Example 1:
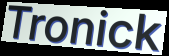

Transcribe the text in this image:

Tronick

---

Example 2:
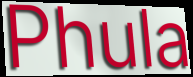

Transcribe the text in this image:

Phula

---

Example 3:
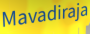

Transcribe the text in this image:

Mavadiraja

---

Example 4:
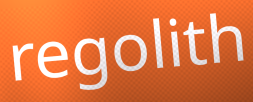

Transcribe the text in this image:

regolith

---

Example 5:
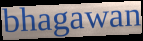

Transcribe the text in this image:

bhagawan